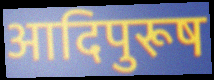
आदिपुरूष